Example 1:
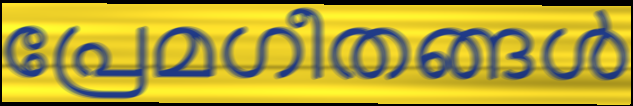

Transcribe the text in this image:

പ്രേമഗീതങ്ങൾ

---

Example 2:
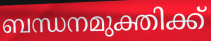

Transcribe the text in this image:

ബന്ധനമുക്തിക്ക്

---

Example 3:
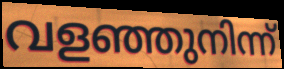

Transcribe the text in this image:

വളഞ്ഞുനിന്ന്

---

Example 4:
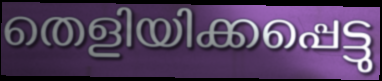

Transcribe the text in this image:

തെളിയിക്കപ്പെട്ടു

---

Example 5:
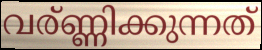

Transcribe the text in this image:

വര്ണ്ണിക്കുന്നത്